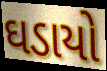
ઘડાયો